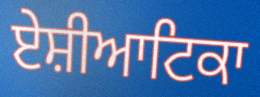
ਏਸ਼ੀਆਟਿਕਾ